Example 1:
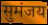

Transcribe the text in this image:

सुमंजय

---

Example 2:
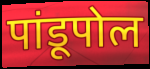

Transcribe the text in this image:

पांडूपोल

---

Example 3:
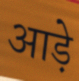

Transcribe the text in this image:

आड़े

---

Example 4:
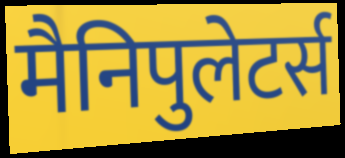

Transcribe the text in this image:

मैनिपुलेटर्स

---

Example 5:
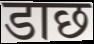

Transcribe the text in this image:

डाछ